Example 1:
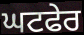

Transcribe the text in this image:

ਘਟਫੇਰ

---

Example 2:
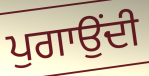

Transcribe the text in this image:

ਪੁਗਾਉਂਦੀ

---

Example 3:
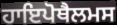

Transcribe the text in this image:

ਹਾਇਪੋਥੈਲਮਸ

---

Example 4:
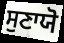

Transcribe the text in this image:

ਸੁਣਾਯੋ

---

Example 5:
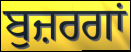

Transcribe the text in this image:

ਬੁਜ਼ਰਗਾਂ